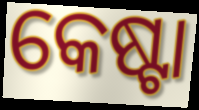
କେଷ୍ଟା